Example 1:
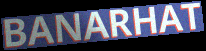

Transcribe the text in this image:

BANARHAT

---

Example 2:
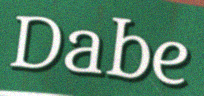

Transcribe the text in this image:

Dabe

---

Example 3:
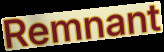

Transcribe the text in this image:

Remnant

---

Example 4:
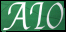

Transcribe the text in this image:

AIO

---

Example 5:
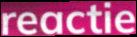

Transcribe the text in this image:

reactie